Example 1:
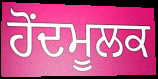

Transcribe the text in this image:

ਹੋਂਦਮੂਲਕ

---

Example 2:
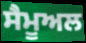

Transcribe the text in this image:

ਸੈਮੂਅਲ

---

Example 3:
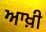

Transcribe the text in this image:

ਆਖ਼ੀ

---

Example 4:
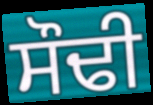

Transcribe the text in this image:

ਸੌਢੀ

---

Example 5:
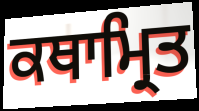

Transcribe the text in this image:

ਕਥਾਮ੍ਰਿਤ